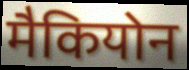
मैकियोन